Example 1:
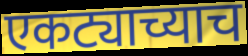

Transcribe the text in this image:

एकट्याच्याच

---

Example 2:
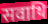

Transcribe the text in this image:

सवाथि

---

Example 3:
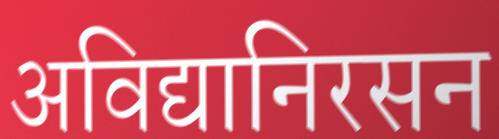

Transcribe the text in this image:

अविद्यानिरसन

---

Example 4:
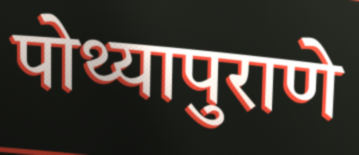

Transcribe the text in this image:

पोथ्यापुराणे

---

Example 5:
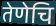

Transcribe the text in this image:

तेणेचि